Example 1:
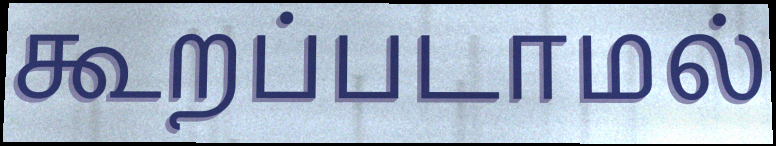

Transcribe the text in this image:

கூறப்படாமல்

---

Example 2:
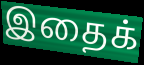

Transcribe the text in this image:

இதைக்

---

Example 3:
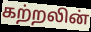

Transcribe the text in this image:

கற்றலின்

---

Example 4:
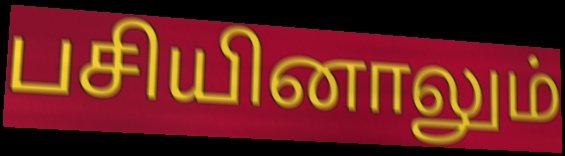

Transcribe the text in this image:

பசியினாலும்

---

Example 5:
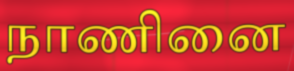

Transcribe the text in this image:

நாணினை